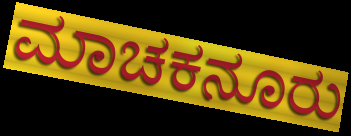
ಮಾಚಕನೂರು